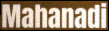
Mahanadi